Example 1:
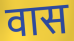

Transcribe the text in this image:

वास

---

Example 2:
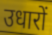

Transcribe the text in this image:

उधारों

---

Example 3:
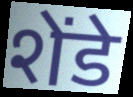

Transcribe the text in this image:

शेंडे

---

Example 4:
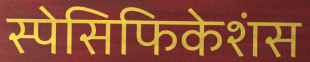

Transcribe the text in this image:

स्पेसिफिकेशंस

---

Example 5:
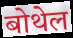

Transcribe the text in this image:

बोथेल